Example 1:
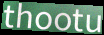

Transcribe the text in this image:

thootu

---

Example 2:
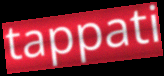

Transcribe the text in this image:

tappati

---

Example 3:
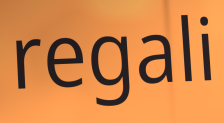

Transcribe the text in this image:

regali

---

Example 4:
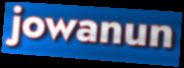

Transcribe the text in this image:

jowanun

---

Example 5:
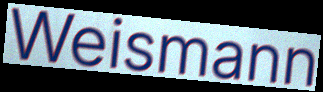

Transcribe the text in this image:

Weismann